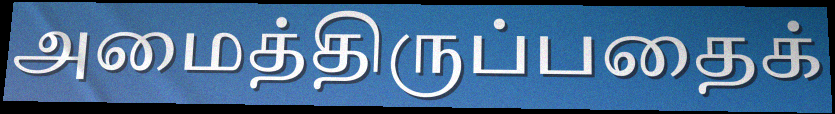
அமைத்திருப்பதைக்